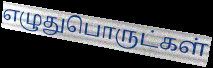
எழுதுபொருட்கள்